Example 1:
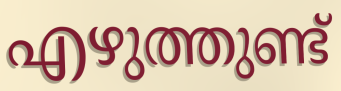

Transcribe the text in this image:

എഴുത്തുണ്ട്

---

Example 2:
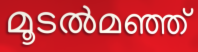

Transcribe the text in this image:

മൂടൽമഞ്ഞ്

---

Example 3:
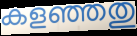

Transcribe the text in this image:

കളഞ്ഞതു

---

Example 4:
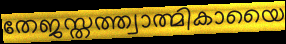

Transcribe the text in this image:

തേജസ്തത്ത്വാത്മികായൈ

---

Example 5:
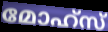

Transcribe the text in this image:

മോഹ്സ്